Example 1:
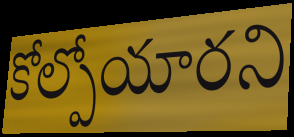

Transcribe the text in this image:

కోల్పోయారని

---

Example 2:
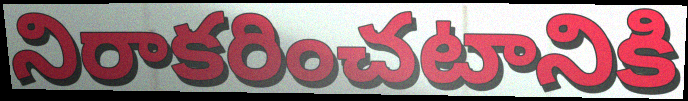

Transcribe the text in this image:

నిరాకరించటానికి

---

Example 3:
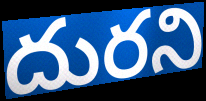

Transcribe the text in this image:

దురని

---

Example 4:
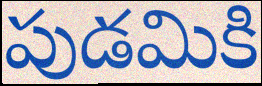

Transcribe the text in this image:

పుడమికి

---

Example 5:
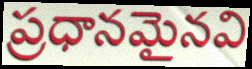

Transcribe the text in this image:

ప్రధానమైనవి